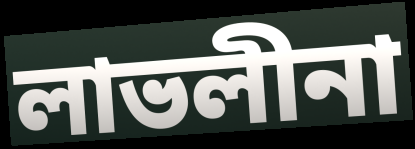
লাভলীনা